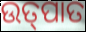
ଉତ୍‌ପାତ